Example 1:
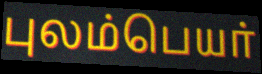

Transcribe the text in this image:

புலம்பெயர்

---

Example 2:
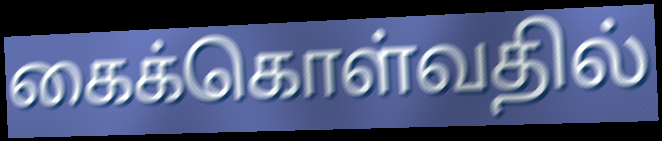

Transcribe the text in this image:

கைக்கொள்வதில்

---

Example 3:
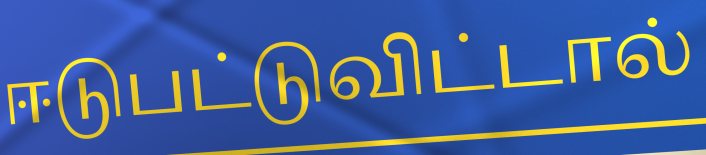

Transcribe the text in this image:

ஈடுபட்டுவிட்டால்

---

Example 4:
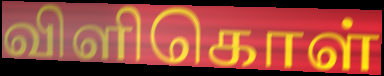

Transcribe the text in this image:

விளிகொள்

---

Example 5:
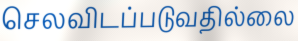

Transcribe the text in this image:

செலவிடப்படுவதில்லை